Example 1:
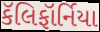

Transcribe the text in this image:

કૅલિફૉર્નિયા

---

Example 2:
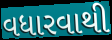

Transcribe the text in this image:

વધારવાથી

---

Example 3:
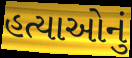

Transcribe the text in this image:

હત્યાઓનું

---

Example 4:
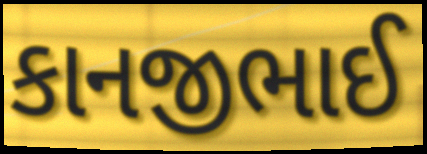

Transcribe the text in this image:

કાનજીભાઈ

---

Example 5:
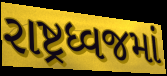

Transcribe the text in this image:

રાષ્ટ્રધ્વજમાં